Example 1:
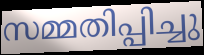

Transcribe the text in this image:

സമ്മതിപ്പിച്ചു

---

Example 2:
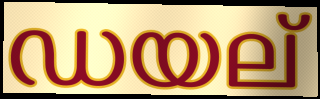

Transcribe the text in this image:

ഡയല്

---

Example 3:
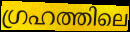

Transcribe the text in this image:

ഗ്രഹത്തിലെ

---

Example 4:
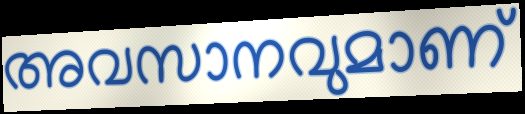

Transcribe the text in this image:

അവസാനവുമാണ്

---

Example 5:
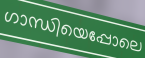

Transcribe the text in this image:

ഗാന്ധിയെപ്പോലെ